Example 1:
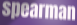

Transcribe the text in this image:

spearman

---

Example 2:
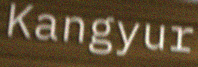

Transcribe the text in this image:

Kangyur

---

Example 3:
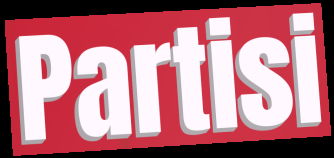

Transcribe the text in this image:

Partisi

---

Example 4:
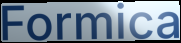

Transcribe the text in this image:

Formica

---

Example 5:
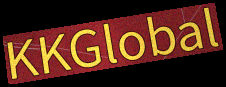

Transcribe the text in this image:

KKGlobal